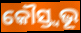
କୌସ୍ତ୍ୱଭୂ